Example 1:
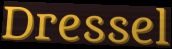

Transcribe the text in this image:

Dressel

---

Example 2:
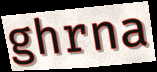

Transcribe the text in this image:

ghrna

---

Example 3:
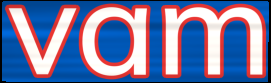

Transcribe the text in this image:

vam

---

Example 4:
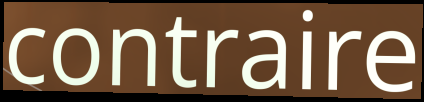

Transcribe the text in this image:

contraire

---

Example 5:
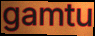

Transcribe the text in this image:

gamtu